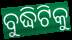
ବୁଦ୍ଧିଟିକୁ